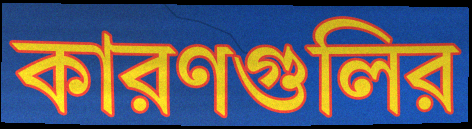
কারণগুলির